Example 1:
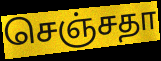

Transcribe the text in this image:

செஞ்சதா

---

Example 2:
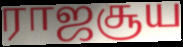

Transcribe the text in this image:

ராஜசூய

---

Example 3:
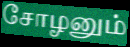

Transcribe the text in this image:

சோழனும்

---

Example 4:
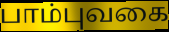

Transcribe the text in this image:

பாம்புவகை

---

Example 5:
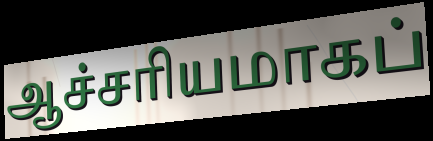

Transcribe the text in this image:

ஆச்சரியமாகப்